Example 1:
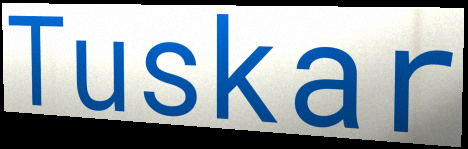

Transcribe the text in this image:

Tuskar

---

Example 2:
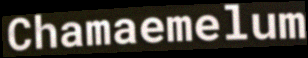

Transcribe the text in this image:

Chamaemelum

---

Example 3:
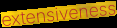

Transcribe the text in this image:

extensiveness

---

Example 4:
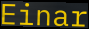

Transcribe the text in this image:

Einar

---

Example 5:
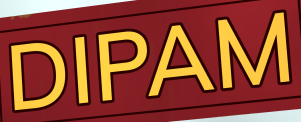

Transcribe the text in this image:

DIPAM